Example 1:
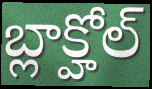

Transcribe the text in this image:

బ్లాక్హోల్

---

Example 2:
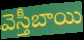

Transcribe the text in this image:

వెస్తీబాయి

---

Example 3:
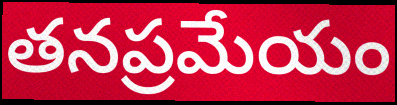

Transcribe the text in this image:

తనప్రమేయం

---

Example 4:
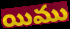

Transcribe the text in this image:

యిము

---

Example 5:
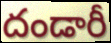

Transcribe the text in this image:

దండారీ